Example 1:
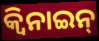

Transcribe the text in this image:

କ୍ୱିନାଇନ୍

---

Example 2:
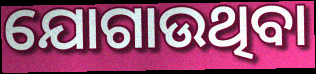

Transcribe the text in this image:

ଯୋଗାଉଥିବା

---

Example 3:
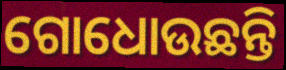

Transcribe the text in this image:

ଗୋଧୋଉଛନ୍ତି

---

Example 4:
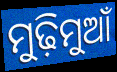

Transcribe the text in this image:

ମୁଢ଼ିମୁଆଁ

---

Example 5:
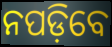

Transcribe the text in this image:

ନପଡ଼ିବେ